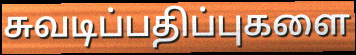
சுவடிப்பதிப்புகளை